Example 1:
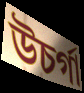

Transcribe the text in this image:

উচৰ্গা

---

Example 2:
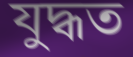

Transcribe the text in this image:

যুদ্ধত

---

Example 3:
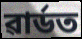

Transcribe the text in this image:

ৱাৰ্ডত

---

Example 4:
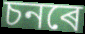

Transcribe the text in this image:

চনৰে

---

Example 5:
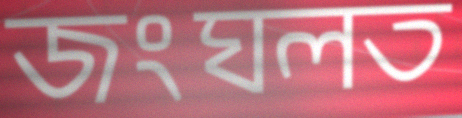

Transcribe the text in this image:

জংঘলত